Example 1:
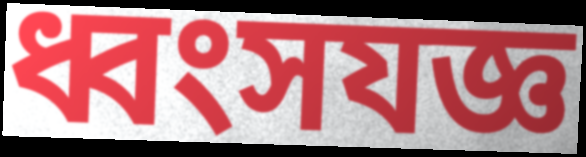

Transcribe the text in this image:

ধ্বংসযজ্ঞ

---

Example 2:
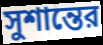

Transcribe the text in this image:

সুশান্তের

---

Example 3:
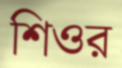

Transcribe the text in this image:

শিওর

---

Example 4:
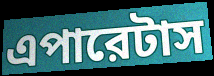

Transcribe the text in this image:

এপারেটাস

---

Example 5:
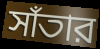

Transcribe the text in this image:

সাঁতার